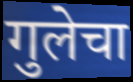
गुलेचा